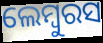
ଲେମ୍ବୁରସ